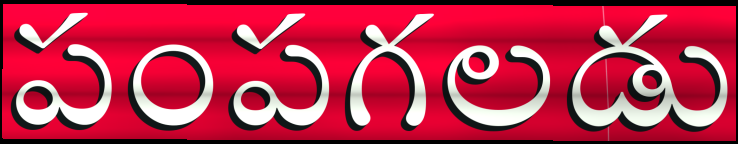
పంపగలడు